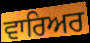
ਵਾਰਿਅਰ